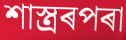
শাস্ত্ৰৰপৰা